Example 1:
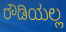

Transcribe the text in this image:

ರೌಡಿಯಲ್ಲ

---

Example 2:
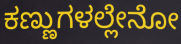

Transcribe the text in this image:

ಕಣ್ಣುಗಳಲ್ಲೇನೋ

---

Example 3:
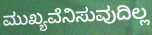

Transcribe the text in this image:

ಮುಖ್ಯವೆನಿಸುವುದಿಲ್ಲ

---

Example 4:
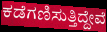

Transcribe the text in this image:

ಕಡೆಗಣಿಸುತ್ತಿದ್ದೇವೆ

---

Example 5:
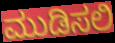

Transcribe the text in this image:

ಮುಡಿಸಲಿ